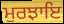
ਮੁਰਝਾਇ